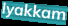
Iyakkam